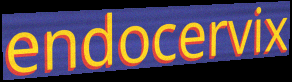
endocervix